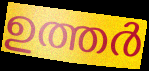
ഉത്തർ